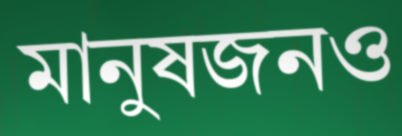
মানুষজনও